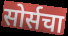
सोर्सचा